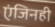
एंजिनही